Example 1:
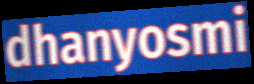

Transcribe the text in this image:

dhanyosmi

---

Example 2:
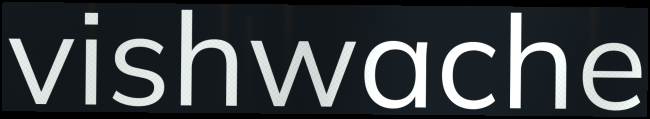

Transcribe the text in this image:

vishwache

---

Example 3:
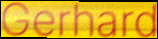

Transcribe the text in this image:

Gerhard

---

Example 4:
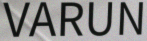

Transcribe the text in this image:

VARUN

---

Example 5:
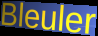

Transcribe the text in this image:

Bleuler